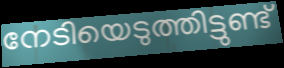
നേടിയെടുത്തിട്ടുണ്ട്